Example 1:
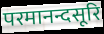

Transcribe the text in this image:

परमानन्दसूरि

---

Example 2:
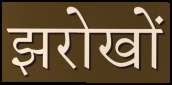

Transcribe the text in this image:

झरोखों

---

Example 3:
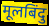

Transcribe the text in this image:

मूलबिंदु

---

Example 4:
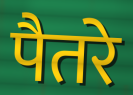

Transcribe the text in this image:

पैतरे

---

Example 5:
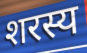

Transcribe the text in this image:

शरस्य